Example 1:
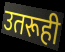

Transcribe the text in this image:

उतरूही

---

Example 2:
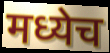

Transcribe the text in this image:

मध्येच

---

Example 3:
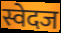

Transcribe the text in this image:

स्वेदज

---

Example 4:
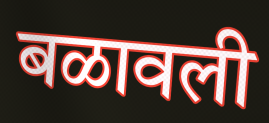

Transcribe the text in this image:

बळावली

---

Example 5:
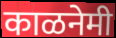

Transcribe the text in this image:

काळनेमी